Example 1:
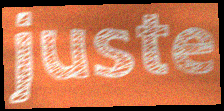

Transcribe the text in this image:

juste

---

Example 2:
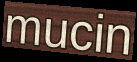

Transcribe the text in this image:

mucin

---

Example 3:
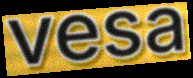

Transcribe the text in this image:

vesa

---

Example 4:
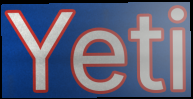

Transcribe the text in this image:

Yeti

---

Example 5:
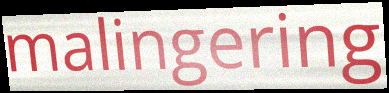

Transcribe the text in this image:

malingering